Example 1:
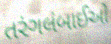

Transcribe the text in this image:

તરંગલંબાઈઓ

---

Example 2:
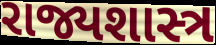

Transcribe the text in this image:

રાજ્યશાસ્ત્ર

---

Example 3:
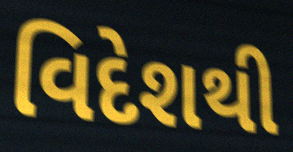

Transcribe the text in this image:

વિદેશથી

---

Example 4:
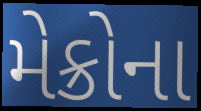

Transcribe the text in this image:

મેક્રોના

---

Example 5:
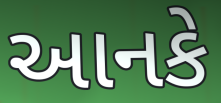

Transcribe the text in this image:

આનકે